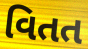
વિતત